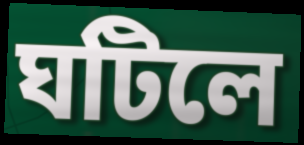
ঘটিলে